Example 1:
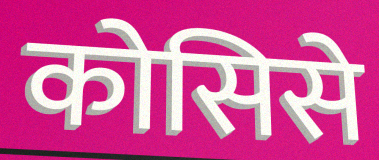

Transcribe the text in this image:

कोसिसे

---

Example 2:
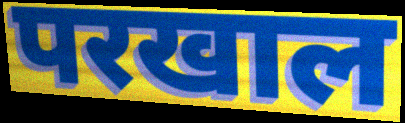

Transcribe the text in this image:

परखाल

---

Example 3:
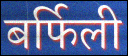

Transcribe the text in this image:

बर्फिली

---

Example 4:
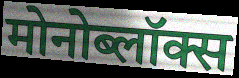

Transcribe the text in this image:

मोनोब्लॉक्स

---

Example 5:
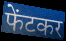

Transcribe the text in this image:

फेंटकर